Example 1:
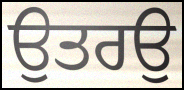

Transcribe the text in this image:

ਉਤਰਉ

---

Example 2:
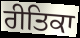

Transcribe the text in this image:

ਰੀਤਿਕਾ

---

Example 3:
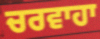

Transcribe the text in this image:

ਚਰਵਾਹਾ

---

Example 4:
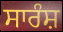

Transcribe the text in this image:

ਸਾਰੰਸ਼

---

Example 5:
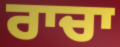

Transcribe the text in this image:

ਰਾਚਾ